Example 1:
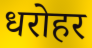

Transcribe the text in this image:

धरोहर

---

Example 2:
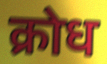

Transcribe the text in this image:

क्रोध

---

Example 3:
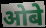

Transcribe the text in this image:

ओबे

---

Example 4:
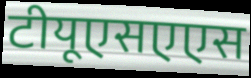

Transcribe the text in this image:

टीयूएसएएस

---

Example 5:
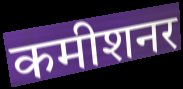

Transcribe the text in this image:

कमीशनर